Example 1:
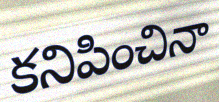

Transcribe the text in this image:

కనిపించినా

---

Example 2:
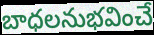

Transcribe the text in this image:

బాధలనుభవించే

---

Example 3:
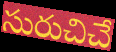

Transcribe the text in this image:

సురుచిచే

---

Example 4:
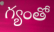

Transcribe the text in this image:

గ్యంతో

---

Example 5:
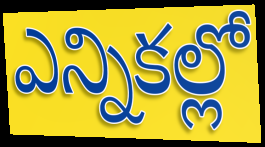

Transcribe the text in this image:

ఎన్నికల్లో